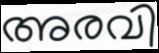
അരവി